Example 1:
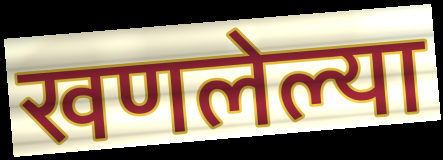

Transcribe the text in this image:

खणलेल्या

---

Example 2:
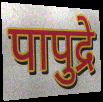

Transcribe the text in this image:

पापुद्रे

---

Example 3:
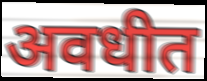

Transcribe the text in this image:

अवधीत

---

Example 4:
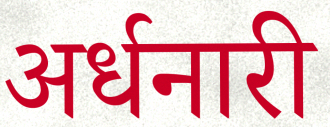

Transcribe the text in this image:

अर्धनारी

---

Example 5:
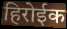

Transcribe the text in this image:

हिरोईक